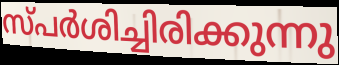
സ്പർശിച്ചിരിക്കുന്നു